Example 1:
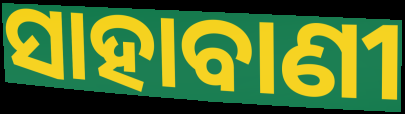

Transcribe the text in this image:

ସାହାବାଣୀ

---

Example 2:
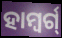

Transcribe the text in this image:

ହାମ୍ବର୍ଗ୍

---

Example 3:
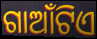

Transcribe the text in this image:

ଗାଆଁଟିଏ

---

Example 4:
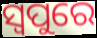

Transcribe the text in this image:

ସ୍ୱପୁରେ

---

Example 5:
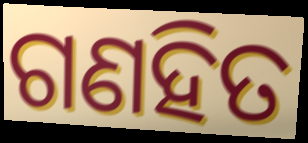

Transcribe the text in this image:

ଗଣହିତ